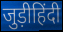
जुड़ीहिंदी